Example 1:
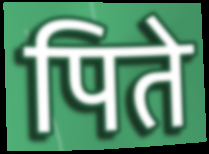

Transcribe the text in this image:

पिते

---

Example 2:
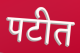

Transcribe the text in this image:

पटीत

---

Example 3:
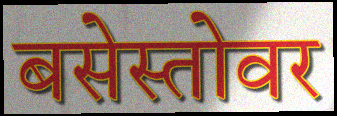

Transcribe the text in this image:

बसेस्तोवर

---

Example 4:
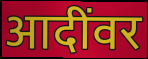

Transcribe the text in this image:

आदींवर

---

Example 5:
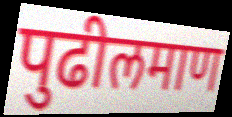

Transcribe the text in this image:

पुढीलमाण